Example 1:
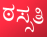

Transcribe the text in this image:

ಠಸ್ಸತಿ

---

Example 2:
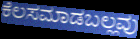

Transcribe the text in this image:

ಕೆಲಸಮಾಡಬಲ್ಲವು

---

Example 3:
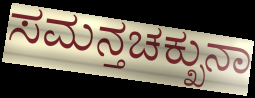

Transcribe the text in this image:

ಸಮನ್ತಚಕ್ಖುನಾ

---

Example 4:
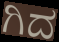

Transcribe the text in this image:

ಗಿದ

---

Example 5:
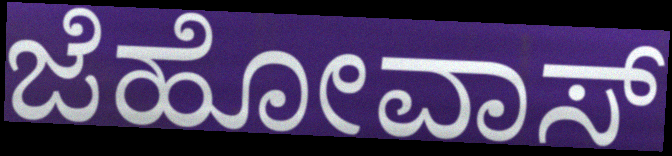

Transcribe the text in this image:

ಜೆಹೋವಾಸ್